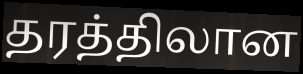
தரத்திலான